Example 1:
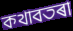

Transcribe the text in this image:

কথাবতৰা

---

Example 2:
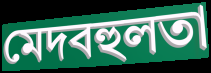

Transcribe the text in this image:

মেদবহুলতা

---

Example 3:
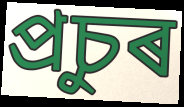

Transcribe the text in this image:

প্ৰচুৰ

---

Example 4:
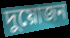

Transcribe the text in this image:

দুয়োজন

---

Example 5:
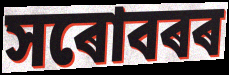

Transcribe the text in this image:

সৰোবৰৰ